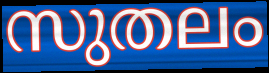
സുതലം